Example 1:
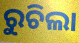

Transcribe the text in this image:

ରୁଚିଲା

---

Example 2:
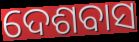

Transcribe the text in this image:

ଦେଶବାସ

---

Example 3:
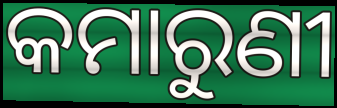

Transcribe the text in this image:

କମାରୁଣୀ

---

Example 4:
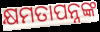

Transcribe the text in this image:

କ୍ଷମତାପନ୍ନଙ୍କ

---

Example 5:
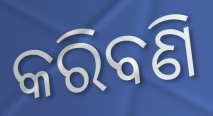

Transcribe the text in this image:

କରିବଣି